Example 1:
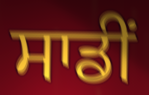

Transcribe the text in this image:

ਸਾਡੀਂ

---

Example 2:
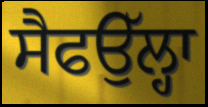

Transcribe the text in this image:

ਸੈਫਉੱਲ੍ਹਾ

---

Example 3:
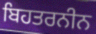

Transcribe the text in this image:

ਬਿਹਤਰਨੀਨ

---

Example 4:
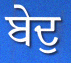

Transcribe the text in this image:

ਬੇਦੁ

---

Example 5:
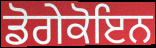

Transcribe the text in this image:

ਡੋਗੇਕੋਇਨ